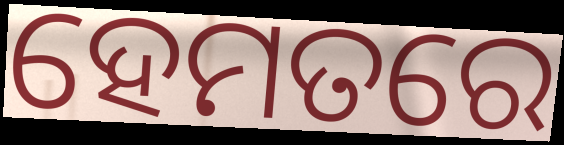
ହେମତରେ